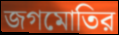
জগমোতির